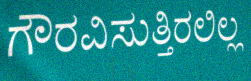
ಗೌರವಿಸುತ್ತಿರಲಿಲ್ಲ